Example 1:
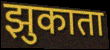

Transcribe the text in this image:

झुकाता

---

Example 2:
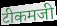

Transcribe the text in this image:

टीकमजी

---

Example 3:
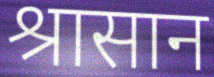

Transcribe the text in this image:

श्रासान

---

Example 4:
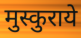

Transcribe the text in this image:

मुस्कुराये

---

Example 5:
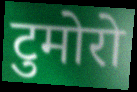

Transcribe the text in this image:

टुमोरो